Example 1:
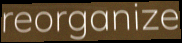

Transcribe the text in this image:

reorganize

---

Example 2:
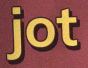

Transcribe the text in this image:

jot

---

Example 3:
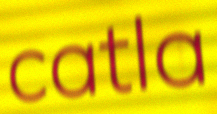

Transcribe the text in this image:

catla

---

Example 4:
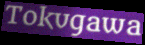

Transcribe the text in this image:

Tokugawa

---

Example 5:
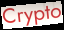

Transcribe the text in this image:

Crypto